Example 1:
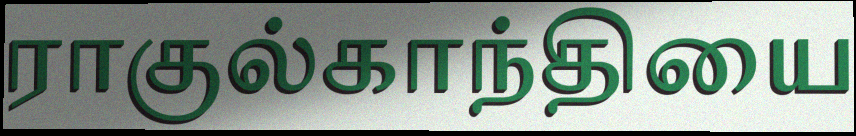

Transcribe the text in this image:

ராகுல்காந்தியை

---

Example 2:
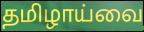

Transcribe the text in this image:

தமிழாய்வை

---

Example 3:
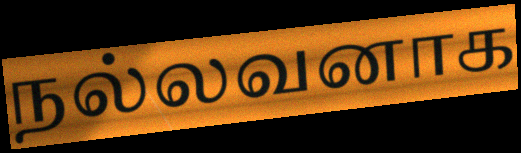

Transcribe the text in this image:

நல்லவனாக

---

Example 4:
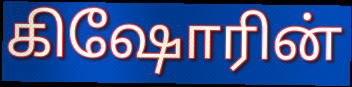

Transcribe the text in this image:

கிஷோரின்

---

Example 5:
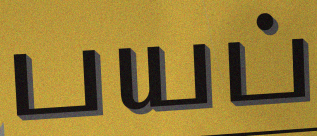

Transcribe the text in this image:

பயப்